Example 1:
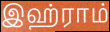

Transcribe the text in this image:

இஹ்ராம்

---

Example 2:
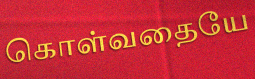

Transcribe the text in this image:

கொள்வதையே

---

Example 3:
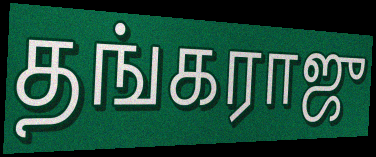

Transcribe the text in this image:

தங்கராஜு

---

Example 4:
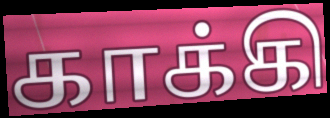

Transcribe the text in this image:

காக்கி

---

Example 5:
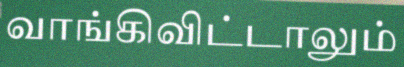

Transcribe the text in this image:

வாங்கிவிட்டாலும்